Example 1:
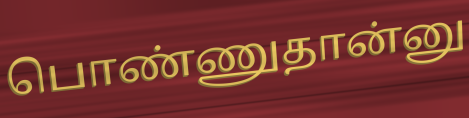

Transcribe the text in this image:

பொண்ணுதான்னு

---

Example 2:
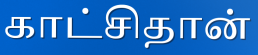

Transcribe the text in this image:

காட்சிதான்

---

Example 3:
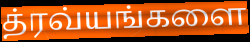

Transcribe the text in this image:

த்ரவ்யங்களை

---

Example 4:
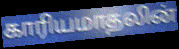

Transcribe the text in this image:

காரியமாதலின்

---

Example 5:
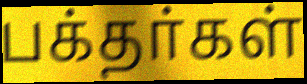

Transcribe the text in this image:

பக்தர்கள்